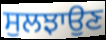
ਸੁਲਝਾਉਣ